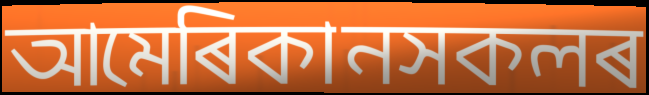
আমেৰিকানসকলৰ